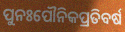
ପୁନଃପୌନିକପ୍ରତିବର୍ଷ